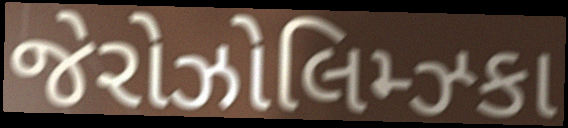
જેરોઝોલિમ્ઝ્કા